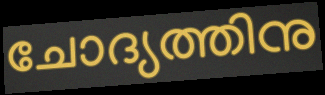
ചോദ്യത്തിനു